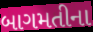
બાગમતીના